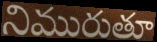
నిమురుతూ